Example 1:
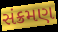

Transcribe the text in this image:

સંક્રમણ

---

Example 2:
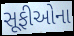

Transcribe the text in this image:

સૂફીઓના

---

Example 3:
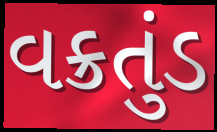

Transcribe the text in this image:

વક્રતુંડ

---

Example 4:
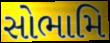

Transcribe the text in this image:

સોભામિ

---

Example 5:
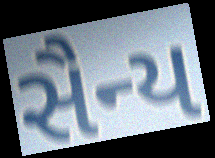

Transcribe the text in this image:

સૈન્ય